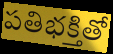
పతిభక్తితో